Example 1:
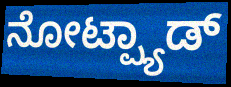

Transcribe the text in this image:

ನೋಟ್ಪ್ಯಾಡ್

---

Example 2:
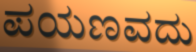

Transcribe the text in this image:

ಪಯಣವದು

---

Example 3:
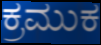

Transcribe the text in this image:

ಕ್ರಮುಕ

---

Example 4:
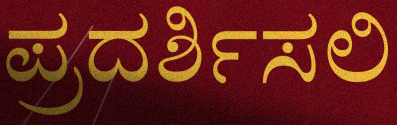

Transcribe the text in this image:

ಪ್ರದರ್ಶಿಸಲಿ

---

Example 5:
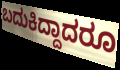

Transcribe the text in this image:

ಬದುಕಿದ್ದಾದರೂ